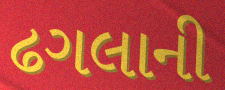
ઢગલાની